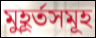
মুহূৰ্তসমূহ